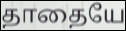
தாதையே